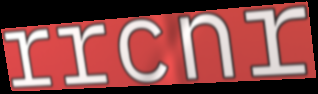
rrcnr